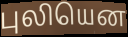
புலியென